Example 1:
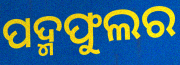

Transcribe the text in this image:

ପଦ୍ମଫୁଲର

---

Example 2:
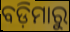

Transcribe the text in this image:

ବଡ଼ିମାରୁ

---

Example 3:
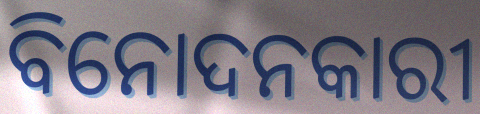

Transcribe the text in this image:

ବିନୋଦନକାରୀ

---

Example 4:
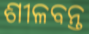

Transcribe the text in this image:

ଶୀଳବନ୍ତ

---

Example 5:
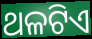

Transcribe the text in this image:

ଥଳଟିଏ